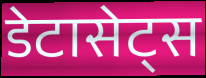
डेटासेट्स